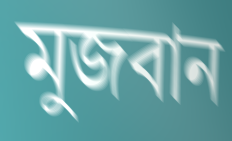
মুজবান